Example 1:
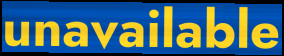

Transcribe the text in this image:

unavailable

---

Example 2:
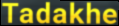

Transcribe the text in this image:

Tadakhe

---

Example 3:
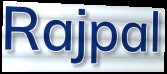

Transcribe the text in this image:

Rajpal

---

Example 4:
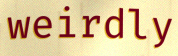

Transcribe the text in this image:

weirdly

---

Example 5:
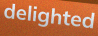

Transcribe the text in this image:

delighted